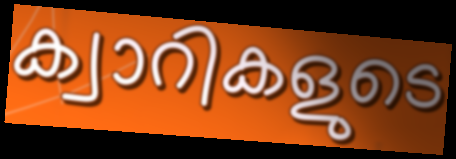
ക്വാറികളുടെ